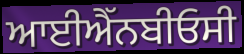
ਆਈਐੱਨਬੀਓਸੀ